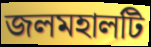
জলমহালটি